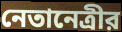
নেতানেত্রীর